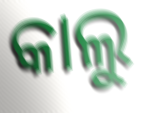
କାଲୁ